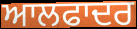
ਆਲਫਾਦਰ